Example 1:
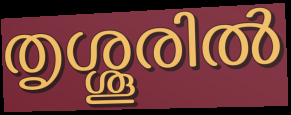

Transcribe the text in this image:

തൃശ്ശൂരിൽ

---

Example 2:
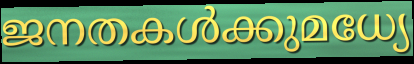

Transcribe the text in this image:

ജനതകൾക്കുമധ്യേ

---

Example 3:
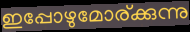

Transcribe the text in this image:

ഇപ്പോഴുമോര്ക്കുന്നു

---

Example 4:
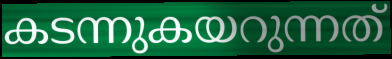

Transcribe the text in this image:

കടന്നുകയറുന്നത്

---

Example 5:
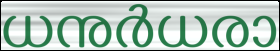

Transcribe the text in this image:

ധനുർധരാ